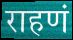
राहणं